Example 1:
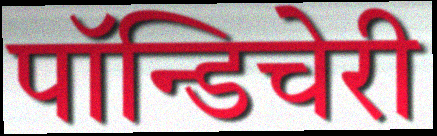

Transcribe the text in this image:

पॉन्डिचेरी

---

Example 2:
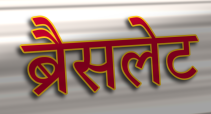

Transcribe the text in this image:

ब्रैसलेट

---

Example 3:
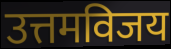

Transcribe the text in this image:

उत्तमविजय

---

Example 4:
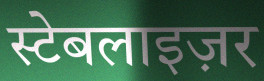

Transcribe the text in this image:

स्टेबलाइज़र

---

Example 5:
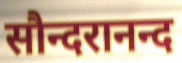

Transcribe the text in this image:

सौन्दरानन्द